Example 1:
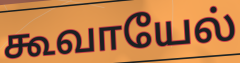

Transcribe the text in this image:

கூவாயேல்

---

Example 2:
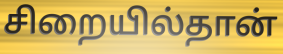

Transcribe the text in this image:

சிறையில்தான்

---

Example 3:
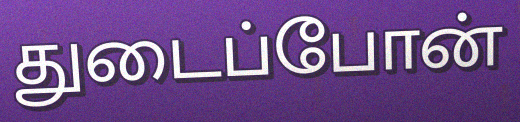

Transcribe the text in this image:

துடைப்போன்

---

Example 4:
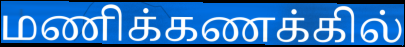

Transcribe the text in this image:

மணிக்கணக்கில்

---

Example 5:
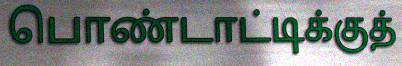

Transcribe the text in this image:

பொண்டாட்டிக்குத்